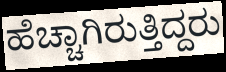
ಹೆಚ್ಚಾಗಿರುತ್ತಿದ್ದರು